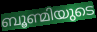
ബൂണ്മിയുടെ